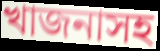
খাজনাসহ